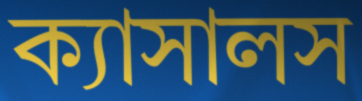
ক্যাসালস